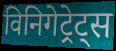
विनिगेट्रेट्स